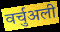
वर्चुअली